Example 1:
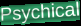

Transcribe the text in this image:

Psychical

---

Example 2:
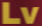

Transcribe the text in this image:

Lv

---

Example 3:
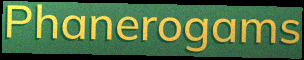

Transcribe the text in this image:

Phanerogams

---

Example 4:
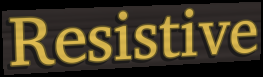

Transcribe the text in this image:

Resistive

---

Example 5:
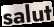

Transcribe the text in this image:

salut